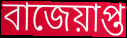
বাজেয়াপ্ত